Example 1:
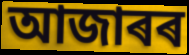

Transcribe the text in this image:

আজাৰৰ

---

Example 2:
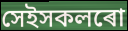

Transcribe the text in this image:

সেইসকলৰো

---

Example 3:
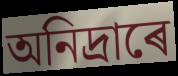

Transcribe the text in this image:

অনিদ্ৰাৰে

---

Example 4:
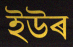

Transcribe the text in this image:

ইউৰ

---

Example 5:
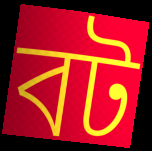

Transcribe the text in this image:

বট